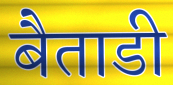
बैताडी